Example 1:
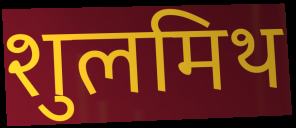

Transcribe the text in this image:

शुलमिथ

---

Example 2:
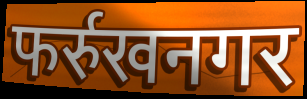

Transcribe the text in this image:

फर्रुखनगर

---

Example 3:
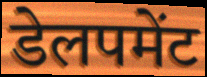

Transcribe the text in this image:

डेलपमेंट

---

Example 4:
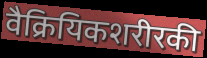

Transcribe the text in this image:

वैक्रियिकशरीरकी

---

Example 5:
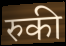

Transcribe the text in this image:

रुकी